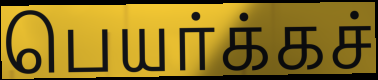
பெயர்க்கச்